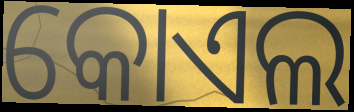
କୋଏଲ